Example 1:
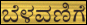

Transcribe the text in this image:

ಬೆಳವಣಿಗೆ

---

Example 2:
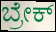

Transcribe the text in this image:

ಬ್ರೇಕ್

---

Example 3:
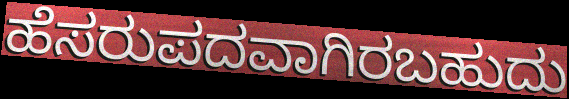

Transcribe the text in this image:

ಹೆಸರುಪದವಾಗಿರಬಹುದು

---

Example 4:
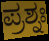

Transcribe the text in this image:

ಪ್ರಶ್ನಃ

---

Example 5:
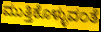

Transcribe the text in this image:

ಮುತ್ತಿಕೊಳ್ಳುವಂತೆ